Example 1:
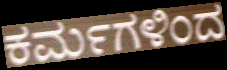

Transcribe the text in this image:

ಕರ್ಮಗಳಿಂದ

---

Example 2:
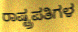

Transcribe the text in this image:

ರಾಷ್ಟ್ರಪತಿಗಳ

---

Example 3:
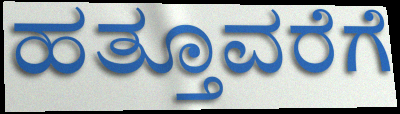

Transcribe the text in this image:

ಹತ್ತೂವರೆಗೆ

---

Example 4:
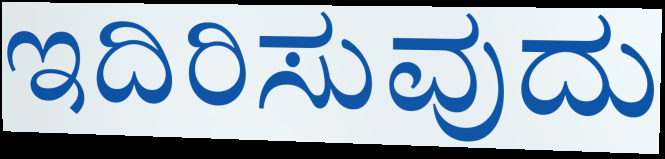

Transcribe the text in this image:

ಇದಿರಿಸುವುದು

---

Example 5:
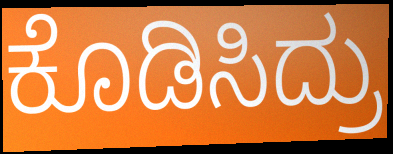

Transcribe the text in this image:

ಕೊಡಿಸಿದ್ರು